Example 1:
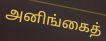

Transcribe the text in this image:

அனிங்கைத்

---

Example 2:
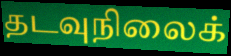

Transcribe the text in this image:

தடவுநிலைக்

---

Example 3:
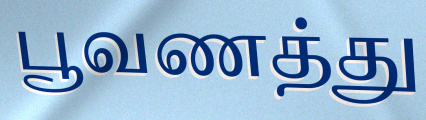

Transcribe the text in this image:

பூவணத்து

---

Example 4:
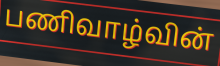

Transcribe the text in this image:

பணிவாழ்வின்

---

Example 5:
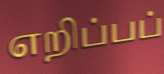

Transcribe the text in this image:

எறிப்பப்